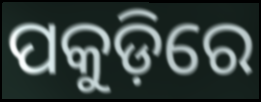
ପକୁଡ଼ିରେ